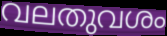
വലതുവശം